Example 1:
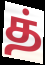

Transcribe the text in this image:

த்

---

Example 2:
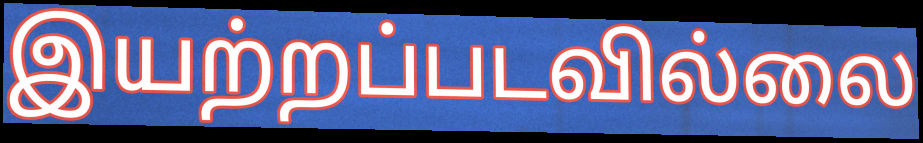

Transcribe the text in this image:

இயற்றப்படவில்லை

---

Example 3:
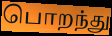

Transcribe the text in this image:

பொறந்து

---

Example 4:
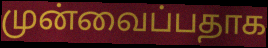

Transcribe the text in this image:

முன்வைப்பதாக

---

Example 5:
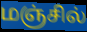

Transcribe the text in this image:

மஞ்சில்